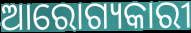
ଆରୋଗ୍ୟକାରୀ